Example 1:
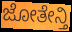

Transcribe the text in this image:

ಜೋತೇನ್ತಿ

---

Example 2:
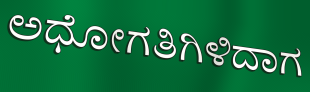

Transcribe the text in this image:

ಅಧೋಗತಿಗಿಳಿದಾಗ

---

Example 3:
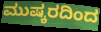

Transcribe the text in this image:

ಮುಷ್ಕರದಿಂದ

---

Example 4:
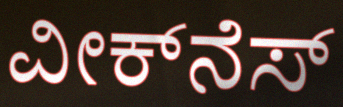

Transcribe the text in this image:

ವೀಕ್‌ನೆಸ್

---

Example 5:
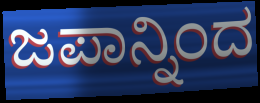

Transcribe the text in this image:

ಜಪಾನ್ನಿಂದ